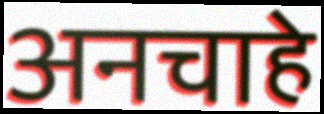
अनचाहे